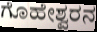
ಗೊಹೇಶ್ವರನ